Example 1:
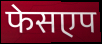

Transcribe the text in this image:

फेसएप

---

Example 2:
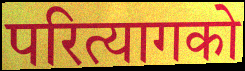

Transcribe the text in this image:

परित्यागको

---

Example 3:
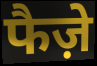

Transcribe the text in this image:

फैज़े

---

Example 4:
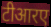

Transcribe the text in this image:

टीआरए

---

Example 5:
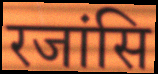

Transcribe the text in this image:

रजांसि